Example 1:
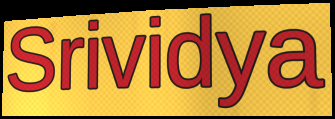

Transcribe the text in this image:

Srividya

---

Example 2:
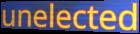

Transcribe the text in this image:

unelected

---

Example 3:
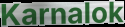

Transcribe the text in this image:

Karnalok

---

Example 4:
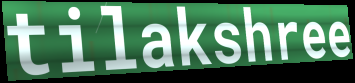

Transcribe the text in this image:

tilakshree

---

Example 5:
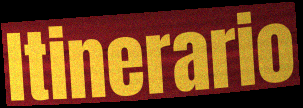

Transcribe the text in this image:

Itinerario